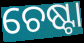
ଚେଷ୍ଟା